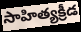
సాహిత్యక్రీడ